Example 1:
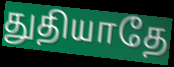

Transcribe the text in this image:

துதியாதே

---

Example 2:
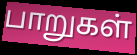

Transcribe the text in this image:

பாறுகள்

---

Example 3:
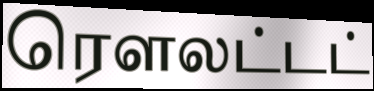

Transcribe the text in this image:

ரௌலட்டட்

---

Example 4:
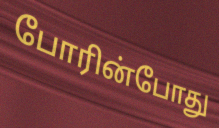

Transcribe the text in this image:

போரின்போது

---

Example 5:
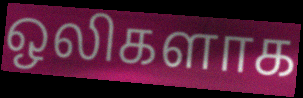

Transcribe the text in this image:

ஒலிகளாக